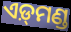
ଏଡ଼୍‌ମଣ୍ଡ